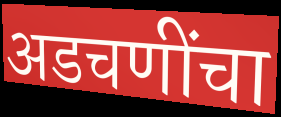
अडचणींचा